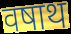
वषाथ